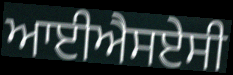
ਆਈਐਸਏਸੀ